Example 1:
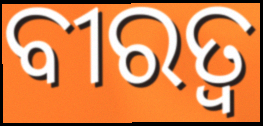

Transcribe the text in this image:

ବୀରତ୍ୱ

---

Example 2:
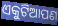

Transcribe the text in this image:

ଏକୁଟିଆପଣ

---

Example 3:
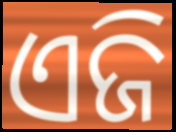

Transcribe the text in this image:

ଏଜି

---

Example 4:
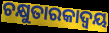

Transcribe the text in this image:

ଚକ୍ଷୁତାରକାଦ୍ଵୟ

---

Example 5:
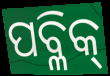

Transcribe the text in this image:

ପବ୍ଳିକ୍